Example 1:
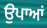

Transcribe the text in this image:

ਉਪਾਆਂ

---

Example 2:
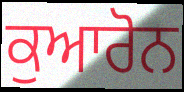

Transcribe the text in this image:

ਕੁਆਰੋਨ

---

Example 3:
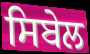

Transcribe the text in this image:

ਸਿਬੇਲ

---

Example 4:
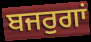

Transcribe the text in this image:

ਬਜਰੁਗਾਂ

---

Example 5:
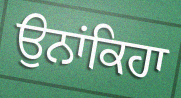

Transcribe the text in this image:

ਉਨਾਂਕਿਹਾ